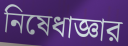
নিষেধাজ্ঞার